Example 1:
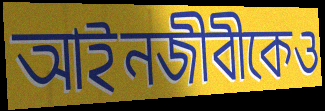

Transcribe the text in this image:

আইনজীবীকেও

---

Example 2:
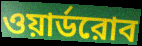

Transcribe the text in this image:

ওয়ার্ডরোব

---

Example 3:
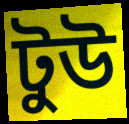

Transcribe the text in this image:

টুউ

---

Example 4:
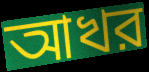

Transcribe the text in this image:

আখর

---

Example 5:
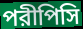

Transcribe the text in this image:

পরীপিসি